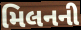
મિલનની